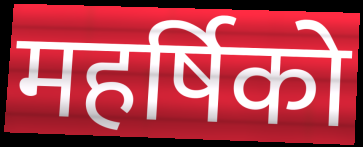
महर्षिको